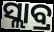
ସ୍ଲାବ୍ର